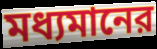
মধ্যমানের